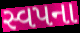
સ્વપના